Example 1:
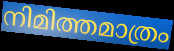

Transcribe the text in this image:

നിമിത്തമാത്രം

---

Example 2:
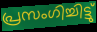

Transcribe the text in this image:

പ്രസംഗിച്ചിട്ടു്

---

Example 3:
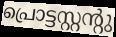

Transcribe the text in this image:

പ്രൊട്ടസ്റ്റന്റു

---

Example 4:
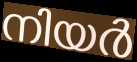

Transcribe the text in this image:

നിയർ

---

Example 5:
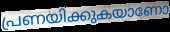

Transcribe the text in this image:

പ്രണയിക്കുകയാണോ